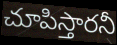
చూపిస్తారనీ